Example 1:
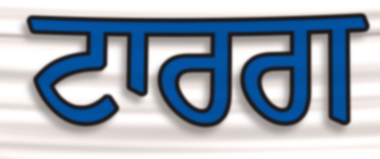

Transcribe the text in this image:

ਟਾਰਗ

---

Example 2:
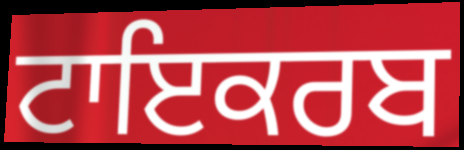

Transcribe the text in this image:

ਟਾਇਕਰਬ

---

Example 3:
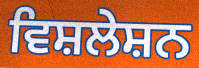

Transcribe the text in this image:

ਵਿਸ਼ਲੇਸ਼ਨ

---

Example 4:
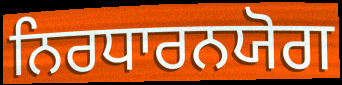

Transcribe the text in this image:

ਨਿਰਧਾਰਨਯੋਗ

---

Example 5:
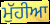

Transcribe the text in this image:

ਮੁੱਹੀਆ